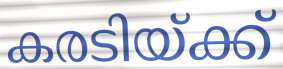
കരടിയ്ക്ക്